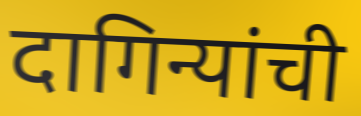
दागिन्यांची